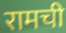
रामची